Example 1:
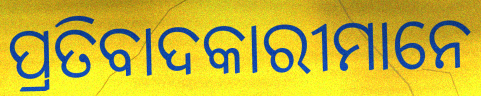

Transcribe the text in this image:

ପ୍ରତିବାଦକାରୀମାନେ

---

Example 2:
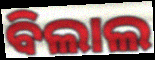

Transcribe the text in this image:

ବିଲାଲ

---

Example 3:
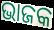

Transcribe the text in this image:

ଭାଜକ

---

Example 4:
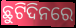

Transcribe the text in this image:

ଛୁଟିଦିନରେ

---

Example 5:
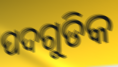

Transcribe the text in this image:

ପଦଗୁଡିକ